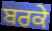
ਬਰਕੇ